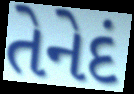
તેનેદં